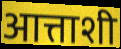
आत्ताशी